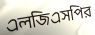
এলজিএসপির